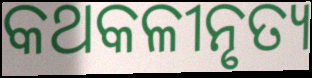
କଥକଳୀନୃତ୍ୟ